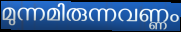
മുന്നമിരുന്നവണ്ണം